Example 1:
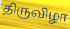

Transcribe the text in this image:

திருவிழா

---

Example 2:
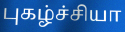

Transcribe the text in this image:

புகழ்ச்சியா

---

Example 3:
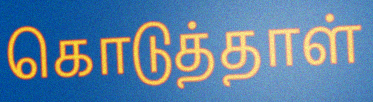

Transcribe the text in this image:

கொடுத்தாள்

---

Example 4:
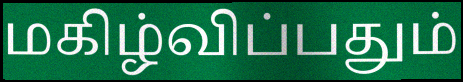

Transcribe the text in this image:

மகிழ்விப்பதும்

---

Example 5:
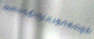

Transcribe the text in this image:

அமைந்திருப்பதாகவும்